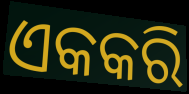
ଏକକରି